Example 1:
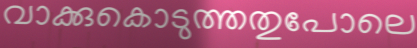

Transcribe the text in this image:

വാക്കുകൊടുത്തതുപോലെ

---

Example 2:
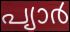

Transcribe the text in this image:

പ്യാർ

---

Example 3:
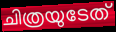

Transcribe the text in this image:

ചിത്രയുടേത്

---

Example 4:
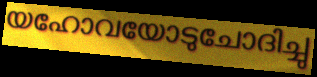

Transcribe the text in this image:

യഹോവയോടുചോദിച്ചു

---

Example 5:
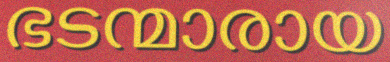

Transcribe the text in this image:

ഭടന്മാരായ